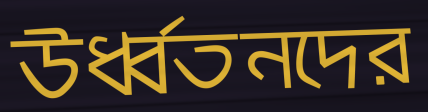
উর্ধ্বতনদের